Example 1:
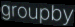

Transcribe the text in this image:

groupby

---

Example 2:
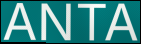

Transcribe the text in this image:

ANTA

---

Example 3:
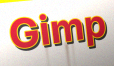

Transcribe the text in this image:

Gimp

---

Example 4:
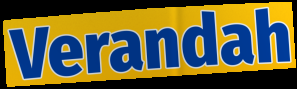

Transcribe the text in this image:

Verandah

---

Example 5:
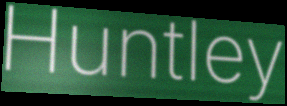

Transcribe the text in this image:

Huntley